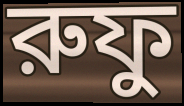
রুফু